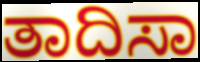
ತಾದಿಸಾ